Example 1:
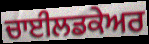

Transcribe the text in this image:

ਚਾਈਲਡਕੇਅਰ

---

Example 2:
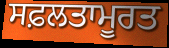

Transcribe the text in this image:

ਸਫ਼ਲਤਾਮੂਰਤ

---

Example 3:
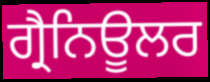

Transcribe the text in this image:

ਗ੍ਰੈਨਿਊਲਰ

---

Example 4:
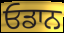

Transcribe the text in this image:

ਓਡਾਨ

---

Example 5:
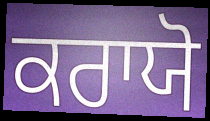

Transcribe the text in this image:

ਕਰਾਯੋ